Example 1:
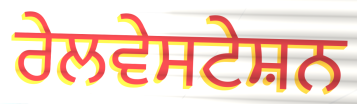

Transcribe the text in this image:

ਰੇਲਵੇਸਟੇਸ਼ਨ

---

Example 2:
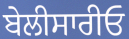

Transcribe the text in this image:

ਬੇਲੀਸਾਰੀਓ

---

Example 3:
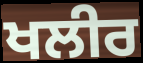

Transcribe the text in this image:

ਖਲੀਰ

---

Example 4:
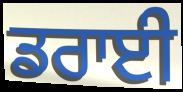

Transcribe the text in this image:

ਡਰਾਈ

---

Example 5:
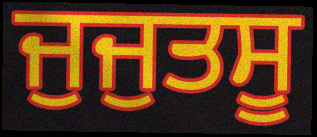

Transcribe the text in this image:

ਜੁਜੁਤਸੂ